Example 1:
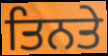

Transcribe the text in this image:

ਤਿਨਤੇ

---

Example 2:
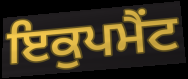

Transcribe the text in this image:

ਇਕੁਪਮੈਂਟ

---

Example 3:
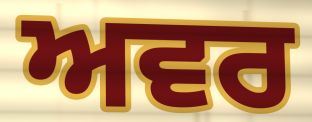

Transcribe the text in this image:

ਅਵਰ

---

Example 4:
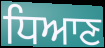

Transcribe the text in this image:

ਧਿਆਣ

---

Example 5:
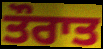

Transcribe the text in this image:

ਤੌਰਾਤ